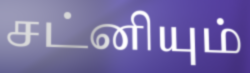
சட்னியும்